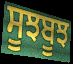
ਸੂਝਬੂਝ